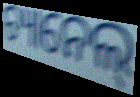
ଚ୍ୟାନେଲ୍